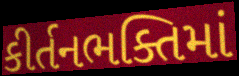
કીર્તનભક્તિમાં